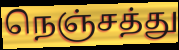
நெஞ்சத்து